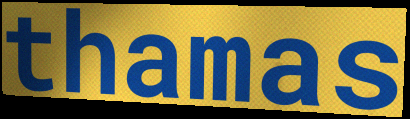
thamas